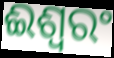
ଈଶ୍ୱରଂ